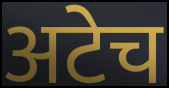
अटेच